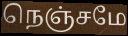
நெஞ்சமே